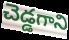
చెడ్డగాని